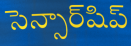
సెన్సార్‌షిప్